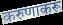
करुणाकरू